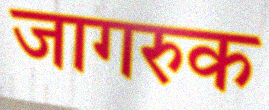
जागरुक